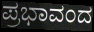
ಪ್ರಭಾವಂದ